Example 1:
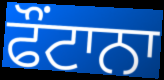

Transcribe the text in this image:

ਫੌਂਟਾਨਾ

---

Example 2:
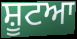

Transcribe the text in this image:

ਸ਼ੂਟਆ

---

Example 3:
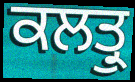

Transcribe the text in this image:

ਕਲਤ੍ਰੁ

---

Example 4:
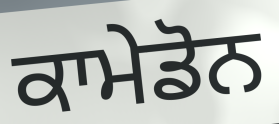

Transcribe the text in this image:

ਕਾਮੇਡੋਨ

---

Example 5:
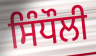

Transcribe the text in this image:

ਸਿੰਧੌਲੀ